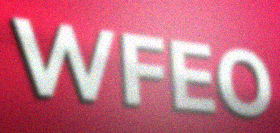
WFEO